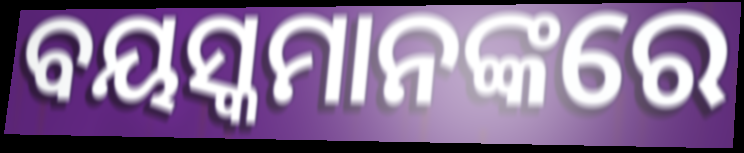
ବୟସ୍କମାନଙ୍କରେ